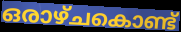
ഒരാഴ്ചകൊണ്ട്